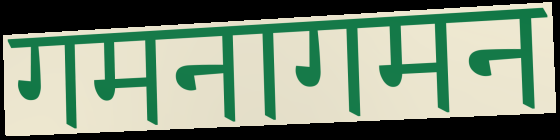
गमनागमन